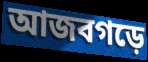
আজবগড়ে